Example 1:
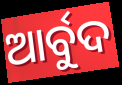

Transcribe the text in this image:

ଆର୍ବୁଦ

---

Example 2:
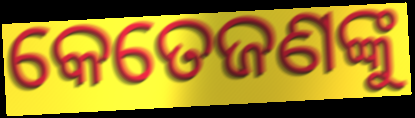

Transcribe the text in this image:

କେତେଜଣଙ୍କୁ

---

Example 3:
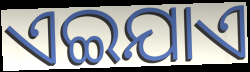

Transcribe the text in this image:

ଏଇଯାଏ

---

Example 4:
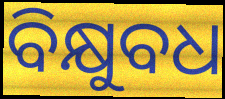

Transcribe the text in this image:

ବିକ୍ଷୁବଧ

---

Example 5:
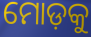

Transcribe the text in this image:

ମୋଡ଼କୁ